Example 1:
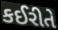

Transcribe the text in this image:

કઈરીતે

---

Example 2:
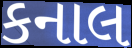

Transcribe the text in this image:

કનાલ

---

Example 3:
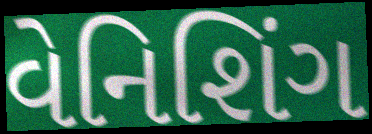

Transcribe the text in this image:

વેનિશિંગ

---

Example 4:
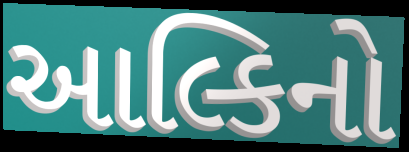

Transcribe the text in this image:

આલ્કિનો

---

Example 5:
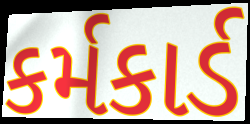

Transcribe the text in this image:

કર્મકાર્ડ